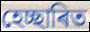
হেচ্ছাৰিত